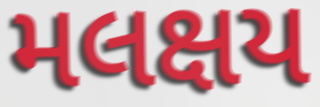
મલક્ષય